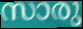
സാരു